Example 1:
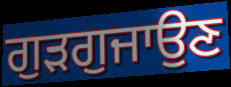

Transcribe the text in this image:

ਗੁੜਗੁਜਾਉਣ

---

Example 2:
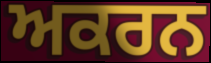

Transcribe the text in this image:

ਅਕਰਨ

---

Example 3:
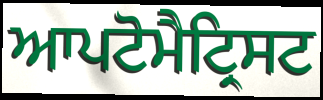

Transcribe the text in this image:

ਆਪਟੋਮੈਟ੍ਰਿਸਟ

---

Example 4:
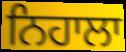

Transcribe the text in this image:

ਨਿਹਾਲਾ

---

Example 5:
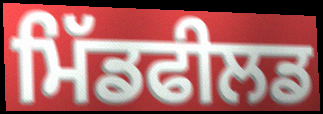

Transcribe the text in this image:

ਮਿੱਡਫੀਲਡ